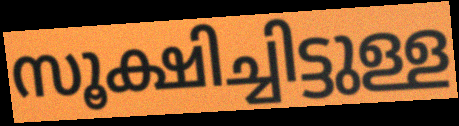
സൂക്ഷിച്ചിട്ടുള്ള